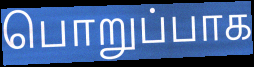
பொறுப்பாக